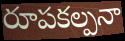
రూపకల్పనా